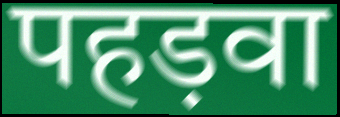
पहड़वा